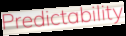
Predictability